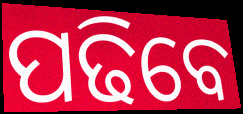
ପଢିବେ